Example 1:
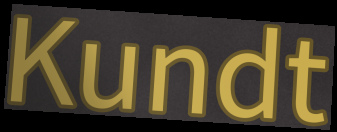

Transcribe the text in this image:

Kundt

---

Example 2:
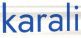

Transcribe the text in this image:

karali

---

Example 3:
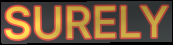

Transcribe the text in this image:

SURELY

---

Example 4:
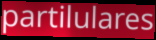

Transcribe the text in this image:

partilulares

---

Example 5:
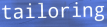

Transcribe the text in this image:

tailoring